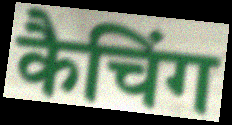
कैचिंग